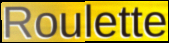
Roulette